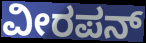
ವೀರಪನ್